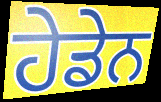
ਹੇਡੇਨ